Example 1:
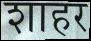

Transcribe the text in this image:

शाहर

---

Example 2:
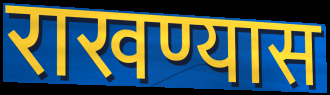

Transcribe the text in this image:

राखण्यास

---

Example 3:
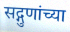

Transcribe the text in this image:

सद्गुणांच्या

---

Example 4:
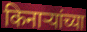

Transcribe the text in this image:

किनाऱ्यांच्या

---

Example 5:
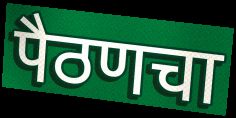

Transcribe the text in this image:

पैठणचा